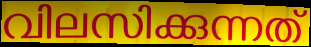
വിലസിക്കുന്നത്